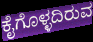
ಕೈಗೊಳ್ಳದಿರುವ